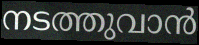
നടത്തുവാൻ